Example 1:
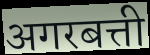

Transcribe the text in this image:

अगरबत्ती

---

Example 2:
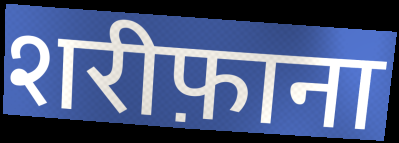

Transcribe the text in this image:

शरीफ़ाना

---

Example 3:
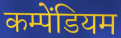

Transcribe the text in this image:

कम्पेंडियम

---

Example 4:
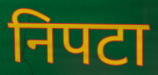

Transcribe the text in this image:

निपटा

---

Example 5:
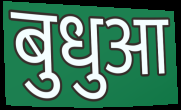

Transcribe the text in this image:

बुधुआ